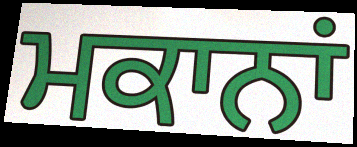
ਮਕਾਨਾਂ